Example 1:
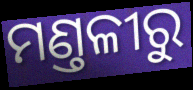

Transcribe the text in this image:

ମଣ୍ତଳୀରୁ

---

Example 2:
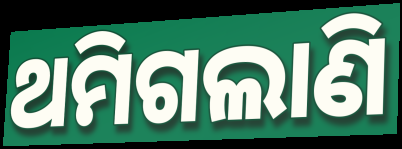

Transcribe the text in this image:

ଥମିଗଲାଣି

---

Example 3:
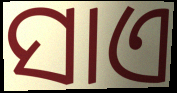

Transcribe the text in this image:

ସାଏ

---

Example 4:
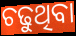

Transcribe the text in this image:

ଚଢୁଥିବା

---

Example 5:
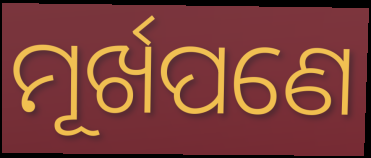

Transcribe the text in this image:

ମୂର୍ଖପଣେ